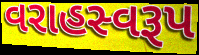
વરાહસ્વરૂપ